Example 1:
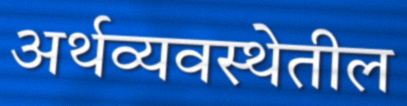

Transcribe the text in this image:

अर्थव्यवस्थेतील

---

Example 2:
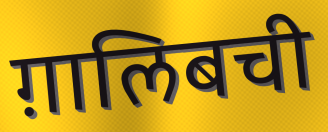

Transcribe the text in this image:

ग़ालिबची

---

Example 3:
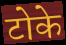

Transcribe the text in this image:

टोके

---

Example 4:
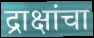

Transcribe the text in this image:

द्राक्षांचा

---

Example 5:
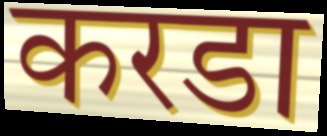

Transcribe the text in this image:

करडा